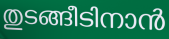
തുടങ്ങീടിനാൻ